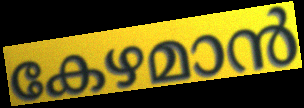
കേഴമാൻ